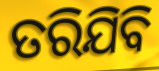
ତରିଯିବି